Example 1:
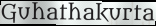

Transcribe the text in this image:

Guhathakurta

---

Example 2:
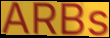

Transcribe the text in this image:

ARBs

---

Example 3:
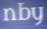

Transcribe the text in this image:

nby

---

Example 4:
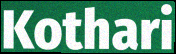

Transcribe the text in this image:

Kothari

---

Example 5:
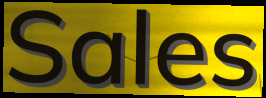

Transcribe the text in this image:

Sales